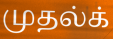
முதல்க்